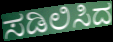
ಸಡಿಲಿಸಿದ